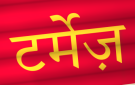
टर्मेज़